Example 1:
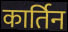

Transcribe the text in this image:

कार्तिन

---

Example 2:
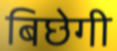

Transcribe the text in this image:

बिछेगी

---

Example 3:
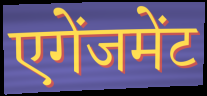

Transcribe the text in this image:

एगेंजमेंट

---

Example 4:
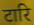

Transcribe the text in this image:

टारि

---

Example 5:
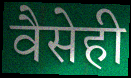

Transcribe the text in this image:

वैसेही